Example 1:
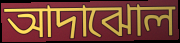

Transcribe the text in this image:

আদাঝোল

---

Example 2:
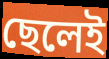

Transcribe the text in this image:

ছেলেই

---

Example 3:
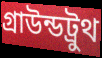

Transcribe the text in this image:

গ্রাউন্ডট্রুথ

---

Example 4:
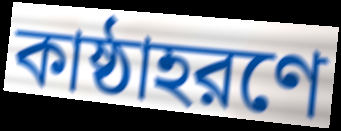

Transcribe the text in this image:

কাষ্ঠাহরণে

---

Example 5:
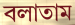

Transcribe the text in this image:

বলাতাম